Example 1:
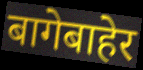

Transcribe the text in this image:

बागेबाहेर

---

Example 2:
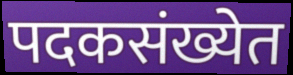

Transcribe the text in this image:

पदकसंख्येत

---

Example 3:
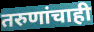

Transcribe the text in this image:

तरुणांचाही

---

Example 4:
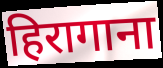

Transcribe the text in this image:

हिरागाना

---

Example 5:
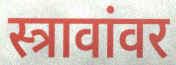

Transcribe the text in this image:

स्त्रावांवर